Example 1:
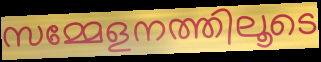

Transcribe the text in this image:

സമ്മേളനത്തിലൂടെ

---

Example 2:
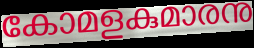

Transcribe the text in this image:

കോമളകുമാരനു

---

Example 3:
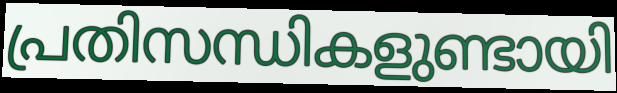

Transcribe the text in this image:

പ്രതിസന്ധികളുണ്ടായി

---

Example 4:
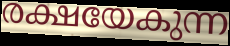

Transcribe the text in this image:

രക്ഷയേകുന്ന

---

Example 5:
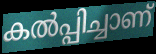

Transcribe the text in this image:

കൽപ്പിച്ചാണ്